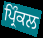
ਪ੍ਰਿੰਕਲ